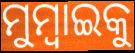
ମୁମ୍ବାଇକୁ